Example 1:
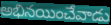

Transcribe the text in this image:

అభినయించేవాడు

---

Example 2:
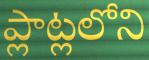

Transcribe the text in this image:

ప్లాట్లలోని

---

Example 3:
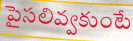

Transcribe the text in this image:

పైసలివ్వకుంటే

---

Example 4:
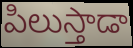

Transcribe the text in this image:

పిలుస్తాడా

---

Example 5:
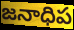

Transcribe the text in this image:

జనాధిప